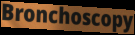
Bronchoscopy